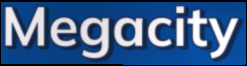
Megacity